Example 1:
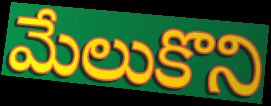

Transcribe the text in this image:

మేలుకొని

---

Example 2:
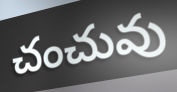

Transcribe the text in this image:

చంచువు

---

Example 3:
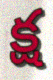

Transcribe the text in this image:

క్ష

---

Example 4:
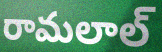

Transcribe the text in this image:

రామలాల్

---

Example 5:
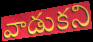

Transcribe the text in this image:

వాడుకని